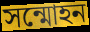
সন্মোহন